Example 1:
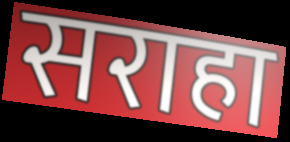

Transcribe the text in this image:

सराहा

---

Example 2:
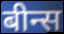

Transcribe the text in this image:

बीन्स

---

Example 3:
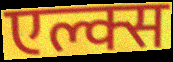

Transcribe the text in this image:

एल्क्स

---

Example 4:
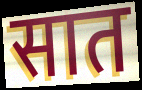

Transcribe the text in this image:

सात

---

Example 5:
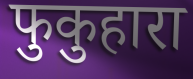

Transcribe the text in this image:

फुकुहारा